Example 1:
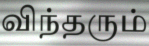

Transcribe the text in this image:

விந்தரும்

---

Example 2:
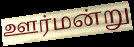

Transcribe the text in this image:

ஊர்மன்று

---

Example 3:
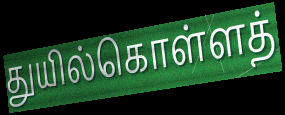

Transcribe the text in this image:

துயில்கொள்ளத்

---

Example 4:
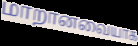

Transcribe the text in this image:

மாறானவையாக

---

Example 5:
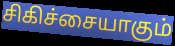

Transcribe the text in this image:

சிகிச்சையாகும்